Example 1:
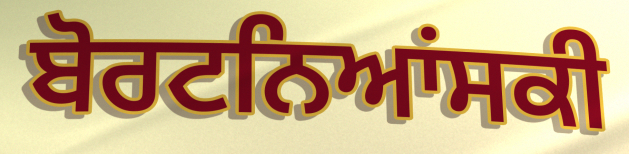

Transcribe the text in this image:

ਬੋਰਟਨਿਆਂਸਕੀ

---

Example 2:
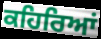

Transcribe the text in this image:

ਕਹਿਰਿਆਂ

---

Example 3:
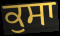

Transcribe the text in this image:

ਕੁਸਾ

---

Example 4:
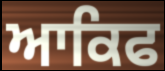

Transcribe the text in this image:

ਆਕਿਫ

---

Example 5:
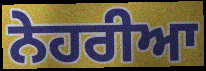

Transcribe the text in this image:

ਨੇਹਰੀਆ